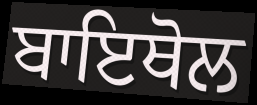
ਬਾਇਥੋਲ